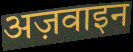
अज़वाइन